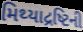
મિથ્યાદ્રષ્ટિની